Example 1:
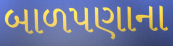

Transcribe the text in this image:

બાળપણાના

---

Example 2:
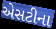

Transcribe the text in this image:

એસટીના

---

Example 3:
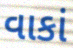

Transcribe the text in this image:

વાકાં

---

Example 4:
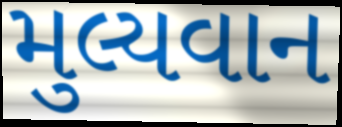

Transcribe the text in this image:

મુલ્યવાન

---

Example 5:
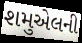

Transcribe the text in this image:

શમુએલની